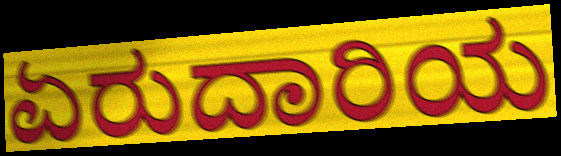
ಏರುದಾರಿಯ